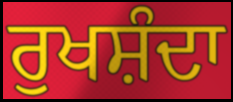
ਰੁਖਸ਼ੰਦਾ